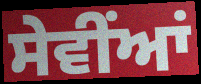
ਸੇਵੀਂਆਂ